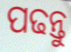
ପଢନ୍ତୁ